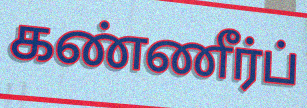
கண்ணீர்ப்